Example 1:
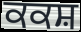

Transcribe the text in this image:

ਕਕਸ਼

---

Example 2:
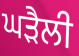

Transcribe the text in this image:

ਘੜੈਲੀ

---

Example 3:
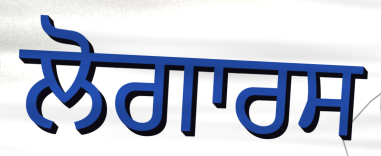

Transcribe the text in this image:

ਲੋਗਾਰਸ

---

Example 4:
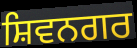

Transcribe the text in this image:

ਸ਼ਿਵਨਗਰ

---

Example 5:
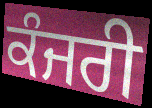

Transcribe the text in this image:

ਕੰਜਰੀ